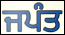
ਜਪੰਤ